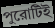
পুরোটিই